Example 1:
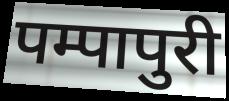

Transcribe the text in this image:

पम्पापुरी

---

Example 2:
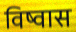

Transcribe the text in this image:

विष्वास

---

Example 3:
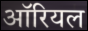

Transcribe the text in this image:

ऑरियल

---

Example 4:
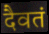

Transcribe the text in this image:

दैवतं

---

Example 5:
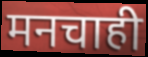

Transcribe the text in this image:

मनचाही